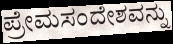
ಪ್ರೇಮಸಂದೇಶವನ್ನು